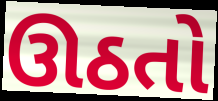
ઊઠતો